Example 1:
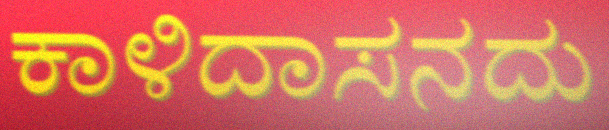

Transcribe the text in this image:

ಕಾಳಿದಾಸನದು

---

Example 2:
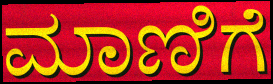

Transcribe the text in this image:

ಮಾಣಿಗೆ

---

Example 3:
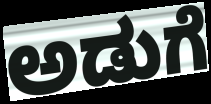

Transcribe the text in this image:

ಅಡುಗೆ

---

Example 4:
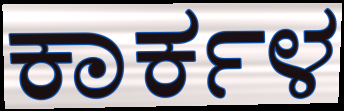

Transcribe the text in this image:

ಕಾರ್ಕಳ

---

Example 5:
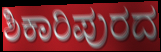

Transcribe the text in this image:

ಶಿಕಾರಿಪುರದ